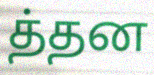
த்தன